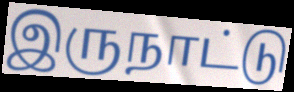
இருநாட்டு